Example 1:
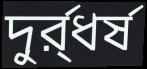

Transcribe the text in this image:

দুর্র্ধর্ষ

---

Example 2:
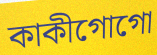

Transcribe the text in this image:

কাকীগোগো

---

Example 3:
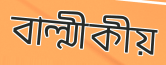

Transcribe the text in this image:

বাল্মীকীয়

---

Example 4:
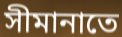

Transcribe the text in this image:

সীমানাতে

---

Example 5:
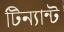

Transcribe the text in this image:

টিন্যান্ট